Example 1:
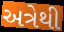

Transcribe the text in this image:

અત્રેથી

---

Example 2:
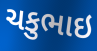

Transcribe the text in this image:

ચકુભાઇ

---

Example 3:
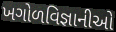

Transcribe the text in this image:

ખગોળવિજ્ઞાનીઓ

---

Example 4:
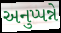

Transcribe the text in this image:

અનુપ્પન્ને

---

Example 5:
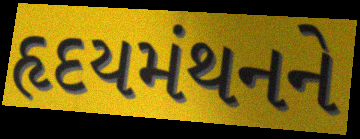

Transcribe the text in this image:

હૃદયમંથનને